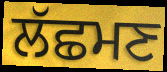
ਲੱਛਮਣ